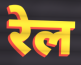
रेल